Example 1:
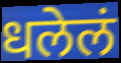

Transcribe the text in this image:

धलेलं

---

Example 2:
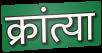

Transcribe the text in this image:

क्रांत्या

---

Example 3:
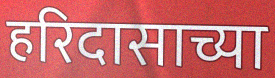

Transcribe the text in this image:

हरिदासाच्या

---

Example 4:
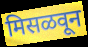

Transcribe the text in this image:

मिसळवून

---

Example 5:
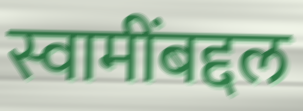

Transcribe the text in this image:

स्वामींबद्दल